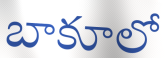
బాకూలో